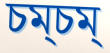
চম্চম্